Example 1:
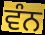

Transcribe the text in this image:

ਵੰਨ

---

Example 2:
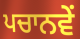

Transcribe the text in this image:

ਪਚਾਨਵੇਂ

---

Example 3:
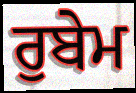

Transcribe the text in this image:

ਰੁਬੇਮ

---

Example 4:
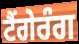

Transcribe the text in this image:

ਟੈਂਗੇਰੰਗ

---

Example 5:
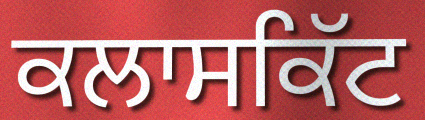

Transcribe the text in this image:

ਕਲਾਸਕਿੱਟ